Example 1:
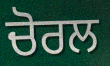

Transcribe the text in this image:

ਚੋਰਲ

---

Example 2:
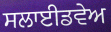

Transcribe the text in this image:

ਸਲਾਈਡਵੇਅ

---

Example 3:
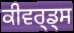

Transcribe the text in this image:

ਕੀਵਰ੍ਡ੍ਸ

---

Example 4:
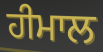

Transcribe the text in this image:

ਹੀਮਾਲ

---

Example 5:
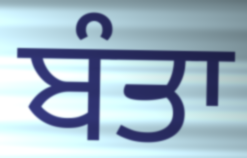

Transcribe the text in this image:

ਬੰਤਾ